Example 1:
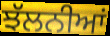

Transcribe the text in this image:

ਝੱਲਨੀਆਂ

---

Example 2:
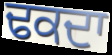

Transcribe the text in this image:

ਢਕਦਾ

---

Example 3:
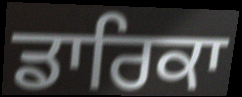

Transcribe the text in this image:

ਡਾਰਿਕਾ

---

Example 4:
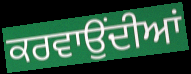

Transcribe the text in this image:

ਕਰਵਾਉਂਦੀਆਂ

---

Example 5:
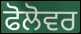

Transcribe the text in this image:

ਫੋਲੋਵਰ